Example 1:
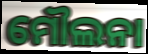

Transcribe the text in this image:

ମୌଲନା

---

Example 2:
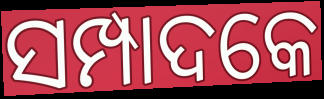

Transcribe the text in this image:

ସମ୍ପାଦକେ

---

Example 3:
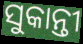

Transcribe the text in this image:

ସୁକାନ୍ତୀ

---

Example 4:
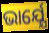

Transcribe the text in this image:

ଭାର୍ଯ୍ଯେ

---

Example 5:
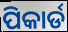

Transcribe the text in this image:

ପିକାର୍ଡ